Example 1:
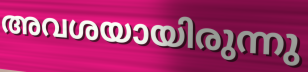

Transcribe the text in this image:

അവശയായിരുന്നു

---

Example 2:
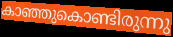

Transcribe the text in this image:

കാഞ്ഞുകൊണ്ടിരുന്നു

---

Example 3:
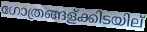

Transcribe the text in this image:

ഗോത്രങ്ങള്ക്കിടയില്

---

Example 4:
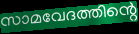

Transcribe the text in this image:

സാമവേദത്തിന്റെ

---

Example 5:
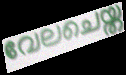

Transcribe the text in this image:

വേലചെയ്ത